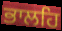
ਭਾਲਹਿ